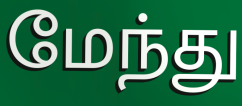
மேந்து